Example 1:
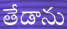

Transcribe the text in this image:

తేడాను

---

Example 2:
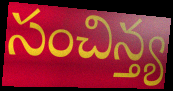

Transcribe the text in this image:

సంచిన్త్య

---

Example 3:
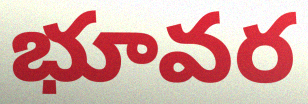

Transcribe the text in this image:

భూవర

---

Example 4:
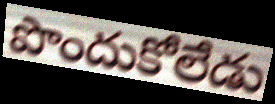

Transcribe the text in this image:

పొందుకోలేడు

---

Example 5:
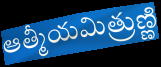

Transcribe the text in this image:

ఆత్మీయమిత్రుణ్ణి